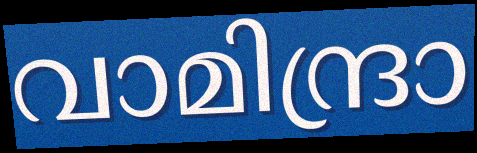
വാമിന്ദ്രാ